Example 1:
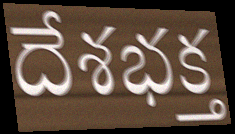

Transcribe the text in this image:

దేశభక్త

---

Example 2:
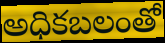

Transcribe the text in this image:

అధికబలంతో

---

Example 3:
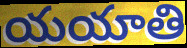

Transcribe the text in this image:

యయాతి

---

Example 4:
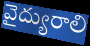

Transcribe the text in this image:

వైద్యురాలి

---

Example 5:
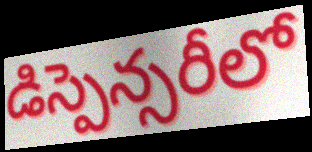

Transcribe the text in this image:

డిస్పెన్సరీలో